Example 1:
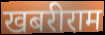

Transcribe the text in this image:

खबरीराम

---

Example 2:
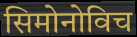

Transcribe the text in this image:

सिमोनोविच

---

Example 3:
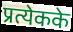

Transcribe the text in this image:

प्रत्येकके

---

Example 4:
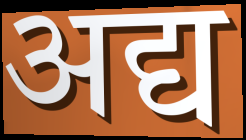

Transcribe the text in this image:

अद्य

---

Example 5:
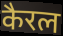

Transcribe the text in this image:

कैरल